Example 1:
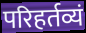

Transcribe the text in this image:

परिहर्तव्यं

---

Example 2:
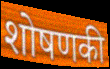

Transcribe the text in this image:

शोषणकी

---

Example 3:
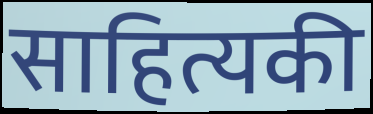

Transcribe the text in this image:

साहित्यकी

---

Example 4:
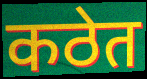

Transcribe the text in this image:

कठेत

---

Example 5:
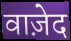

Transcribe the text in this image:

वाज़ेद